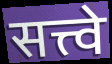
सत्त्वे